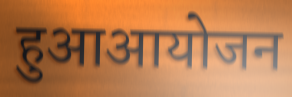
हुआआयोजन